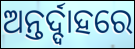
ଅନ୍ତର୍ଦ୍ଦାହରେ